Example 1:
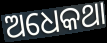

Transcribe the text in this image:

ଅଧେକଥା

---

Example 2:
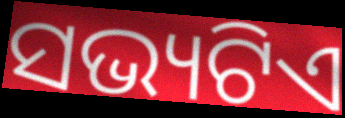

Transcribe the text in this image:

ସଭ୍ୟଟିଏ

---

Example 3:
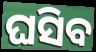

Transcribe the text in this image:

ଘସିବ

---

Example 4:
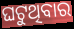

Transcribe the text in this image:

ଘଟୁଥିବାର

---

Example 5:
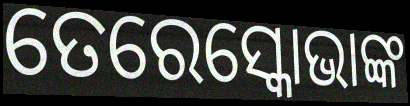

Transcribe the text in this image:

ତେରେସ୍କୋଭାଙ୍କ